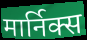
मार्निक्स